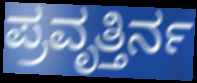
ಪ್ರವೃತ್ತಿರ್ನ